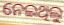
ନେଇଥିଲୁ